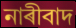
নাৰীবাদ